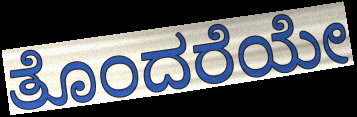
ತೊಂದರೆಯೇ